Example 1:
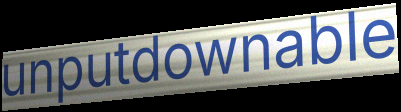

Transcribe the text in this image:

unputdownable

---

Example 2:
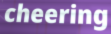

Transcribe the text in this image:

cheering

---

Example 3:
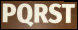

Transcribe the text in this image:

PQRST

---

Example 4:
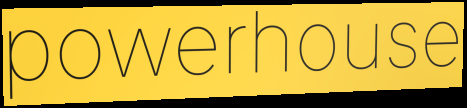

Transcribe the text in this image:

powerhouse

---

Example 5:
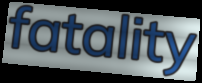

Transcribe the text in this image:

fatality